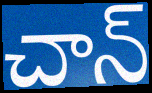
చాన్